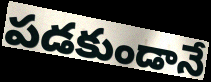
పడకుండానే